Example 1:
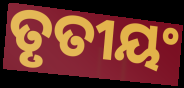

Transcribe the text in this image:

ତୃତୀୟଂ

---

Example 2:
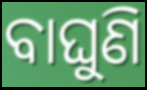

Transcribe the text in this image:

ବାଘୁଣି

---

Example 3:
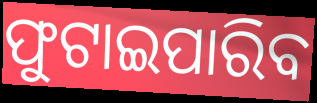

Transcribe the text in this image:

ଫୁଟାଇପାରିବ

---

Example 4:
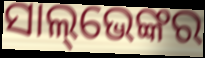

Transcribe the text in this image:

ସାଲ୍‌ଭେଙ୍କର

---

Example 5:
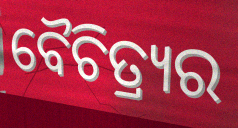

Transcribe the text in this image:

ବୈଚିତ୍ର୍ୟର